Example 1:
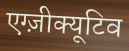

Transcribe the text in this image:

एग्ज़ीक्यूटिव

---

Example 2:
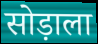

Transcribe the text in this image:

सोड़ाला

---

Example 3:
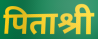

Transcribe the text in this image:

पिताश्री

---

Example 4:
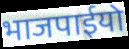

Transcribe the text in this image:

भाजपाईयो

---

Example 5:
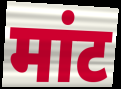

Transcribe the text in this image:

मांट